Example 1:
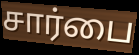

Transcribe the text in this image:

சார்பை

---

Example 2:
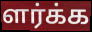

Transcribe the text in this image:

ளர்க்க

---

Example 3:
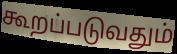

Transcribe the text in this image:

கூறப்படுவதும்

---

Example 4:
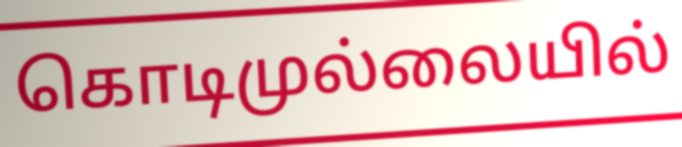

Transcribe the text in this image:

கொடிமுல்லையில்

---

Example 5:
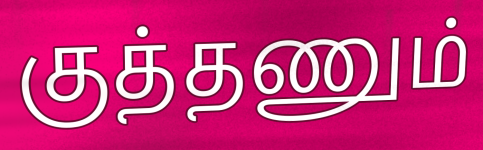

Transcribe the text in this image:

குத்தணும்